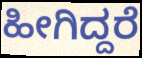
ಹೀಗಿದ್ದರೆ